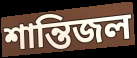
শান্তিজল